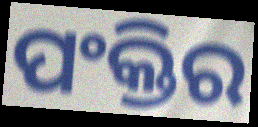
ପଂକ୍ତିର